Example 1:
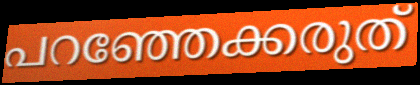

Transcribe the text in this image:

പറഞ്ഞേക്കരുത്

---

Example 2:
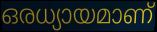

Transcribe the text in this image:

ഒരധ്യായമാണ്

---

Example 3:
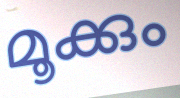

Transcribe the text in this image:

മൂക്കും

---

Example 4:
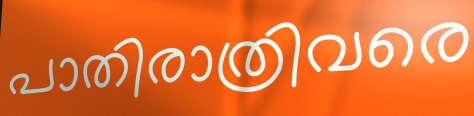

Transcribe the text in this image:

പാതിരാത്രിവരെ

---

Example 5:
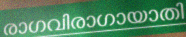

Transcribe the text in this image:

രാഗവിരാഗായാതി